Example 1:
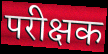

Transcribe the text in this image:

परीक्षक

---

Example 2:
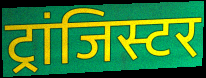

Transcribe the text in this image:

ट्रांजिस्टर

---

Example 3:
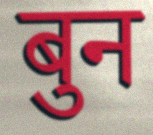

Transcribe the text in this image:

बुन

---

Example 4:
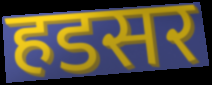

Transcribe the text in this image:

हडसर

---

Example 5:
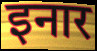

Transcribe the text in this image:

इनार